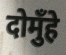
दोमुँहे